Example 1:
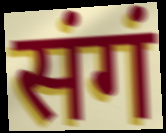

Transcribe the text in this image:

संगं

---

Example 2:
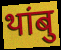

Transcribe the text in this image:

थांबु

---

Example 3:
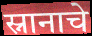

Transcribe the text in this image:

स्नानाचे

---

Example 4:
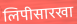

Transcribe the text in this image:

लिपीसारखा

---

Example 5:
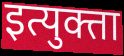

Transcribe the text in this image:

इत्युक्ता